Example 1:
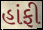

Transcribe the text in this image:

હાંફી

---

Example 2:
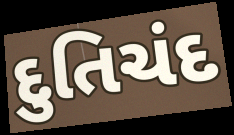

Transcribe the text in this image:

દુતિચંદ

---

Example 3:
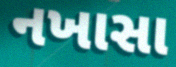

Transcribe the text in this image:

નખાસા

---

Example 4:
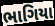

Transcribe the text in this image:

ભાગિયા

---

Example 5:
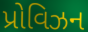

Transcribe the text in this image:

પ્રોવિઝન